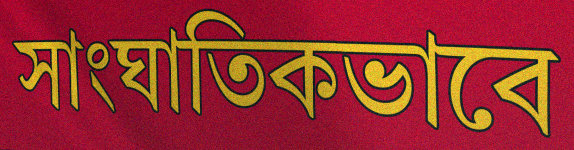
সাংঘাতিকভাবে